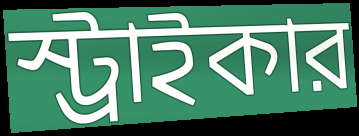
স্ট্রাইকার